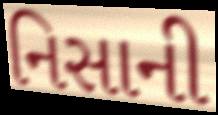
નિસાની